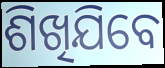
ଶିଖିଯିବେ